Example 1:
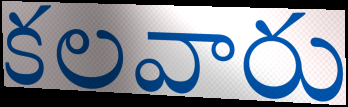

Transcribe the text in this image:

కలవారు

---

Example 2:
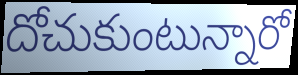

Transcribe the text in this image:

దోచుకుంటున్నారో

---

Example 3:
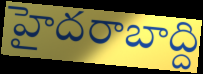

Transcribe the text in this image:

హైదరాబాద్ది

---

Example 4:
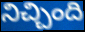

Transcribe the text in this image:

నిచ్చింది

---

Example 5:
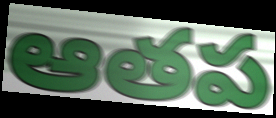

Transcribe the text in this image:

ఆతప